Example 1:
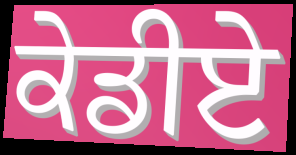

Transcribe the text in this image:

ਕੇਡੀਏ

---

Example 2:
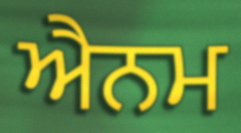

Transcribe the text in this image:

ਐਨਮ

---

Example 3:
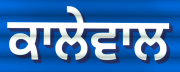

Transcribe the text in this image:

ਕਾਲੇਵਾਲ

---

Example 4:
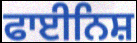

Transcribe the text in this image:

ਫਾਈਨਿਸ਼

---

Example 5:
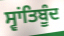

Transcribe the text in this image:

ਸ੍ਵਾਂਤਿਬੂੰਦ